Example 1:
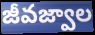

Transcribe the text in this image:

జీవజ్వాల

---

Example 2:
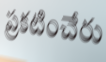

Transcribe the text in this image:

ప్రకటించేరు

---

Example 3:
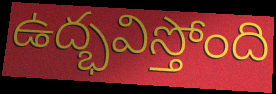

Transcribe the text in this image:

ఉద్భవిస్తోంది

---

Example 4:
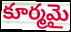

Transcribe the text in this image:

కూర్మమై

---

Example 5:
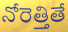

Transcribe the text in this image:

నోరెత్తితే